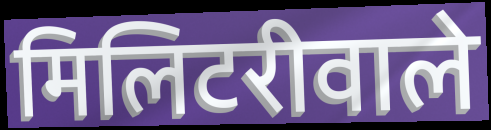
मिलिटरीवाले